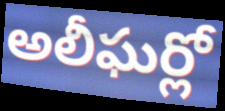
అలీఘర్లో